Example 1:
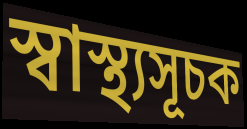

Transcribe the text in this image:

স্বাস্থ্যসূচক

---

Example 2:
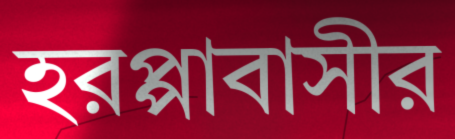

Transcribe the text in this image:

হরপ্পাবাসীর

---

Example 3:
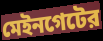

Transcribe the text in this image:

মেইনগেটের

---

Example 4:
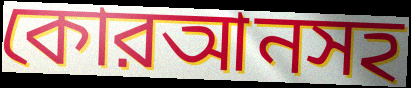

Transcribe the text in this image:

কোরআনসহ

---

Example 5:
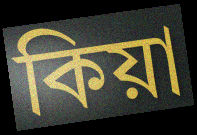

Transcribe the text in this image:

কিয়া